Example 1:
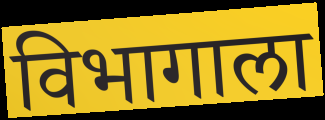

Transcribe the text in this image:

विभागाला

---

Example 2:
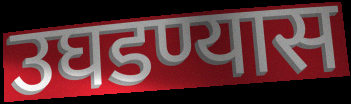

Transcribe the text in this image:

उघडण्यास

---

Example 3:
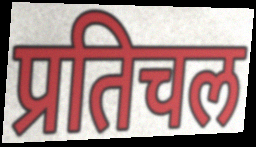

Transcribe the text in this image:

प्रतिचल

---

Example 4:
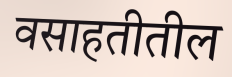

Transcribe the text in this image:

वसाहतीतील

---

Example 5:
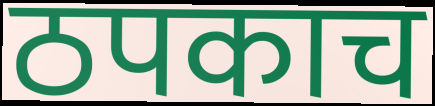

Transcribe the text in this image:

ठपकाच